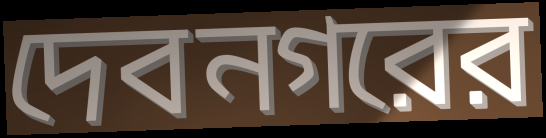
দেবনগরের